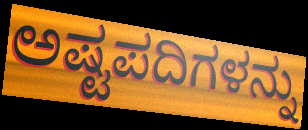
ಅಷ್ಟಪದಿಗಳನ್ನು